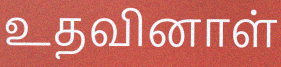
உதவினாள்